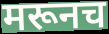
मरूनच